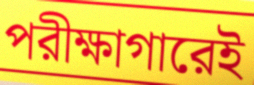
পরীক্ষাগারেই